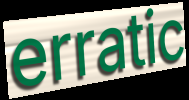
erratic